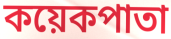
কয়েকপাতা